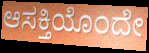
ಆಸಕ್ತಿಯೊಂದೇ